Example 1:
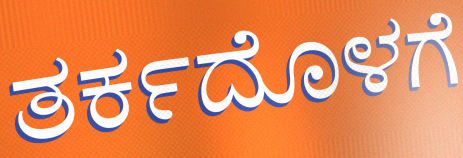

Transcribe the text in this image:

ತರ್ಕದೊಳಗೆ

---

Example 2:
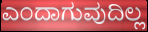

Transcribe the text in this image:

ಎಂದಾಗುವುದಿಲ್ಲ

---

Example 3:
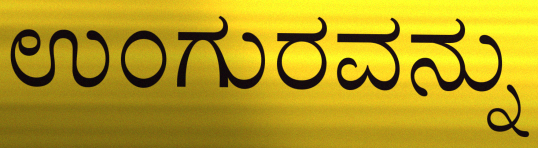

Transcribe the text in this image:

ಉಂಗುರವನ್ನು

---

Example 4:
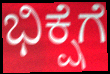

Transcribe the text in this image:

ಭಿಕ್ಷೆಗೆ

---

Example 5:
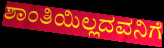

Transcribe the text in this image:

ಶಾಂತಿಯಿಲ್ಲದವನಿಗೆ